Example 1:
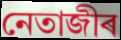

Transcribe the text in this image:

নেতাজীৰ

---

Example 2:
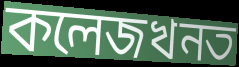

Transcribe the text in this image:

কলেজখনত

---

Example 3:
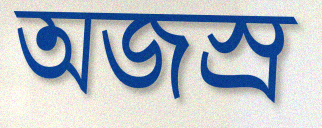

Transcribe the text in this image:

অজস্ৰ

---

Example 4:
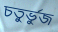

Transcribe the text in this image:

চতুৰ্ভুজ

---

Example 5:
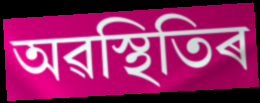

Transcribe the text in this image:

অৱস্থিতিৰ